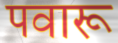
पवारू